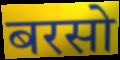
बरसो